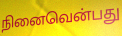
நினைவென்பது